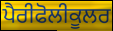
ਪੈਰੀਫੋਲੀਕੂਲਰ